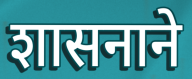
शासनाने